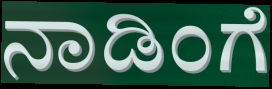
ನಾಡಿಂಗೆ